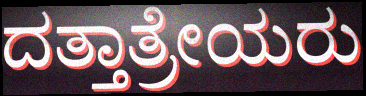
ದತ್ತಾತ್ರೇಯರು